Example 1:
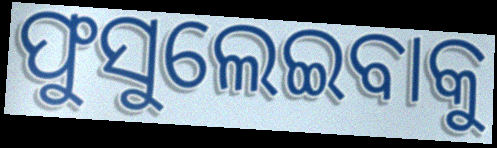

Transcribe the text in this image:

ଫୁସୁଲେଇବାକୁ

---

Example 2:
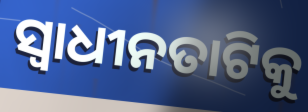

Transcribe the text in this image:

ସ୍ୱାଧୀନତାଟିକୁ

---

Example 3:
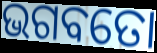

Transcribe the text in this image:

ଭଗବତୋ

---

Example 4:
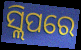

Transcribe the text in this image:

ସ୍ଲିପରେ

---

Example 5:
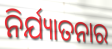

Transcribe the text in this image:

ନିର୍ଯ୍ୟାତନାର